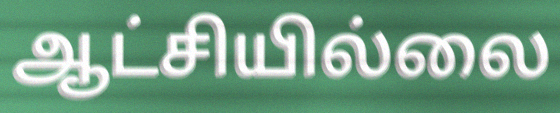
ஆட்சியில்லை